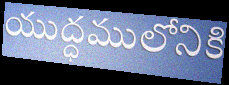
యుద్ధములోనికి